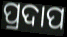
ପ୍ରଦାପ